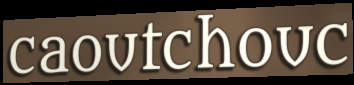
caoutchouc